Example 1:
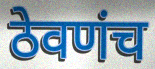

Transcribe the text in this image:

ठेवणंच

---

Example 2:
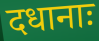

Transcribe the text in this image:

दधानाः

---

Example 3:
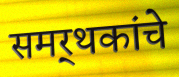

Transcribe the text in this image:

समर्थकांचे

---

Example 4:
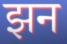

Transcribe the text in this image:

झन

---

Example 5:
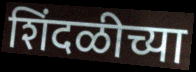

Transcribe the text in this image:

शिंदळीच्या